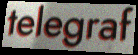
telegraf